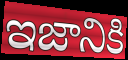
ఇజానికి